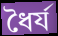
ধৈৰ্য